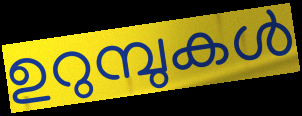
ഉറുമ്പുകൾ